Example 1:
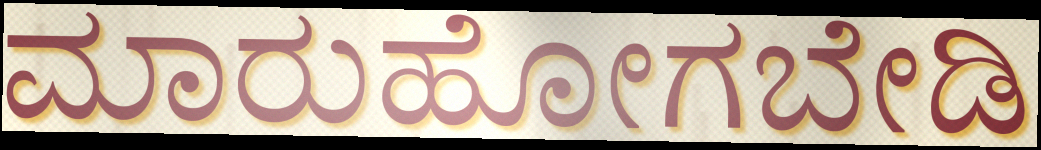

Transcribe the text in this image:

ಮಾರುಹೋಗಬೇಡಿ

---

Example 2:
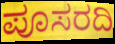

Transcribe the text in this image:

ಪೂಸರದಿ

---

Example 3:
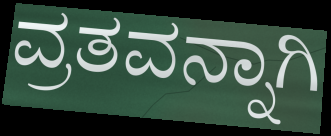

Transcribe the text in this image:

ವ್ರತವನ್ನಾಗಿ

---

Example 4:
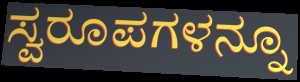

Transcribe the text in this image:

ಸ್ವರೂಪಗಳನ್ನೂ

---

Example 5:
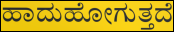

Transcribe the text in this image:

ಹಾದುಹೋಗುತ್ತದೆ